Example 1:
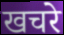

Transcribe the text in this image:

खचरे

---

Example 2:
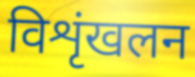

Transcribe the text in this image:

विशृंखलन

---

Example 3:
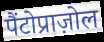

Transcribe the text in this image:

पैंटोप्राज़ोल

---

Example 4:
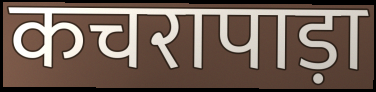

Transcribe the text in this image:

कचरापाड़ा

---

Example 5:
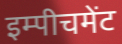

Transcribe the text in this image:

इम्पीचमेंट